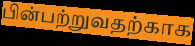
பின்பற்றுவதற்காக